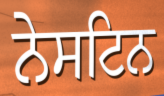
ਨੇਸਟਿਨ